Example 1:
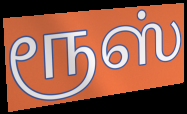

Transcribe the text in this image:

ரூஸ்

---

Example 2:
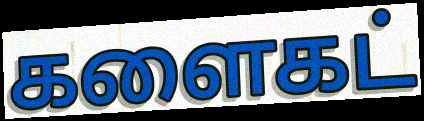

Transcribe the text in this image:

களைகட்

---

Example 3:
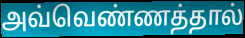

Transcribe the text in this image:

அவ்வெண்ணத்தால்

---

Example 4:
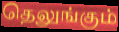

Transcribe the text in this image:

தெலுங்கும்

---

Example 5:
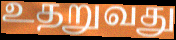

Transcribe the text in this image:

உதறுவது